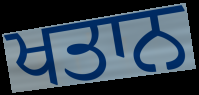
ਖਤਾਨ